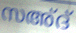
സഅ്ദ്